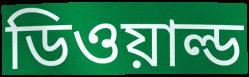
ডিওয়াল্ড